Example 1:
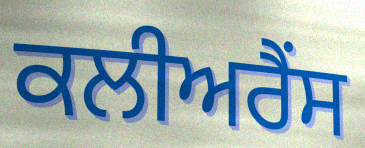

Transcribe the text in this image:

ਕਲੀਅਰੈਂਸ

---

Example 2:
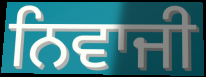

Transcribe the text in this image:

ਨਿਵਾਜੀ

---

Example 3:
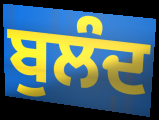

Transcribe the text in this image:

ਬੁਲੰਦ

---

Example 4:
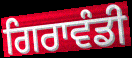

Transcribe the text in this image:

ਗਿਰਾਵੰਡੀ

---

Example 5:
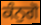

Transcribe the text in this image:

ਕੰਨੁਗੋ